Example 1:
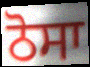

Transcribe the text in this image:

ਠੋਸਾ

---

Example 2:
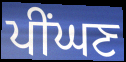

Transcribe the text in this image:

ਪੀਂਘਣ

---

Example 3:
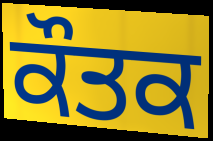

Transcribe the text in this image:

ਕੌਤਕ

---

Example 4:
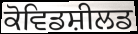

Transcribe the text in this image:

ਕੋਵਿਡਸ਼ੀਲਡ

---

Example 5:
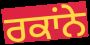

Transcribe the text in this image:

ਰਕਾਂਨੇ